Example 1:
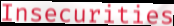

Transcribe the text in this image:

Insecurities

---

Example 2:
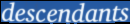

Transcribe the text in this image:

descendants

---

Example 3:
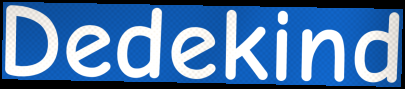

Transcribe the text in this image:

Dedekind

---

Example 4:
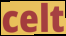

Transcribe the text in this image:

celt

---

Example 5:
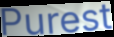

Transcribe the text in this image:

Purest